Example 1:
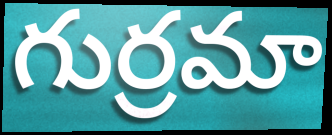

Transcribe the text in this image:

గుర్రమా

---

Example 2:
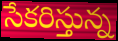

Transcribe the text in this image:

సేకరిస్తున్న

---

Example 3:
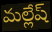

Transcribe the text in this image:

మల్లేష్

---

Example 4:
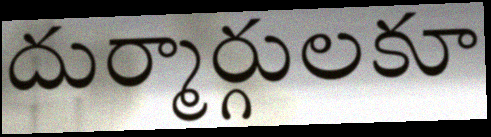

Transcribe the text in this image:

దుర్మార్గులకూ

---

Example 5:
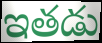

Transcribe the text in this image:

ఇతడు